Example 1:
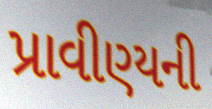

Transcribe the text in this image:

પ્રાવીણ્યની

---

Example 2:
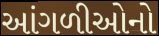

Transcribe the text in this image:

આંગળીઓનો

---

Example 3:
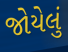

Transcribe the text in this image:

જોયેલું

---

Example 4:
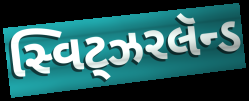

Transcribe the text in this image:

સ્વિટ્ઝરલૅન્ડ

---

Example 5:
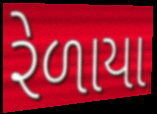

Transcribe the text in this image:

રેળાયા